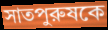
সাতপুরুষকে